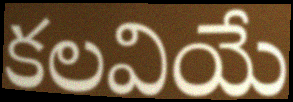
కలవియే